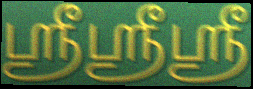
ஸ்ரீஸ்ரீஸ்ரீ